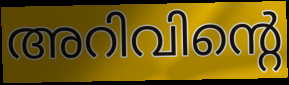
അറിവിന്റെ